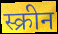
स्क्रीन